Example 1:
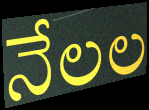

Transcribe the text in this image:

నేలల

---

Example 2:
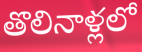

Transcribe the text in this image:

తొలినాళ్లలో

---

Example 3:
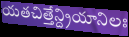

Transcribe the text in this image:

యతచిత్తేన్ద్రియానిలః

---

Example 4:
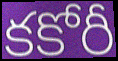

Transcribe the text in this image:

కకోరీ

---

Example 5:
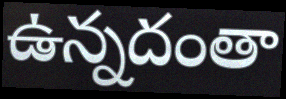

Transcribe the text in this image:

ఉన్నదంతా